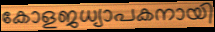
കോളജധ്യാപകനായി